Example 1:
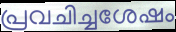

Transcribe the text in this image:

പ്രവചിച്ചശേഷം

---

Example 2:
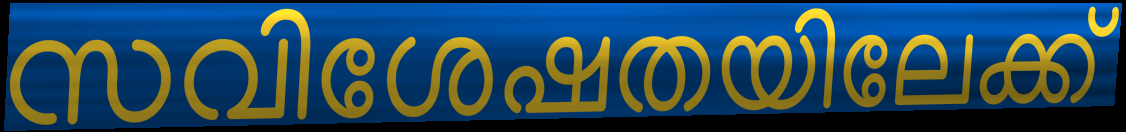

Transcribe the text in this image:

സവിശേഷതയിലേക്ക്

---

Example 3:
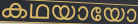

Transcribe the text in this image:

കഥയായോ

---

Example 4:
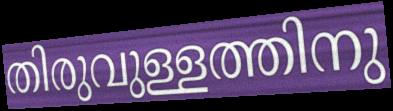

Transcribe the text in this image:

തിരുവുള്ളത്തിനു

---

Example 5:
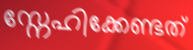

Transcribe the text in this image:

സ്നേഹിക്കേണ്ടത്